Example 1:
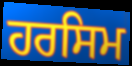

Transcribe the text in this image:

ਹਰਸਿਮ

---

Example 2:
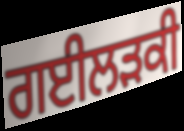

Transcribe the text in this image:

ਗਈਲੜਕੀ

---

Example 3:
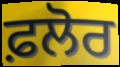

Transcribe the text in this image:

ਫ਼ਲੋਰ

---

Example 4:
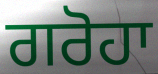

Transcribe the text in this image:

ਗਰੋਹਾ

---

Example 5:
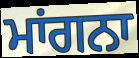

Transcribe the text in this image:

ਮਾਂਗਨਾ